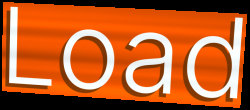
Load